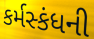
કર્મસ્કંધની